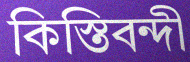
কিস্তিবন্দী